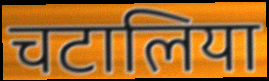
चटालिया